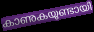
കാണുകയുണ്ടായി